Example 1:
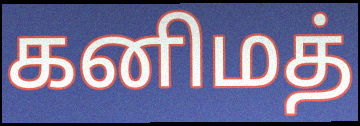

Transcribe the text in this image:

கனிமத்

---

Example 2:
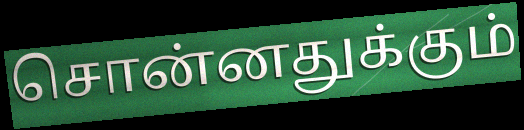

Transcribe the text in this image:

சொன்னதுக்கும்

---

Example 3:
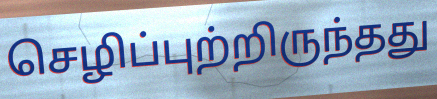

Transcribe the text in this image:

செழிப்புற்றிருந்தது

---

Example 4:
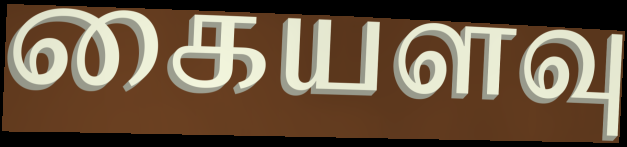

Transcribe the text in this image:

கையளவு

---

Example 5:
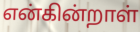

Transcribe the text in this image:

என்கின்றாள்